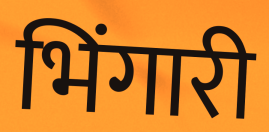
भिंगारी